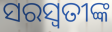
ସରସ୍ବତୀଙ୍କ